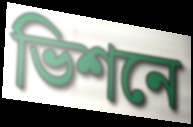
ভিশনে